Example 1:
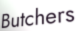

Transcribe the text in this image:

Butchers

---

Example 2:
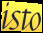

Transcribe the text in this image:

isto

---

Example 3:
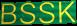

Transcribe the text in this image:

BSSK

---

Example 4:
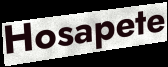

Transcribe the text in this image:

Hosapete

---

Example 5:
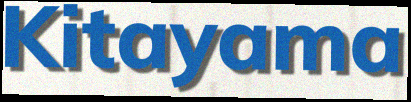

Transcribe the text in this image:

Kitayama